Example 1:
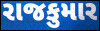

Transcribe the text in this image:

રાજકુમાર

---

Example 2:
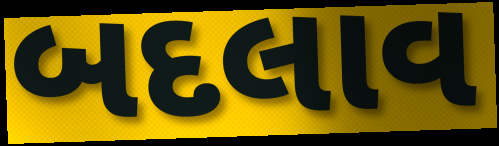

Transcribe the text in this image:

બદલાવ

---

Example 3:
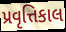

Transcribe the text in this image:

પ્રવૃત્તિકાલ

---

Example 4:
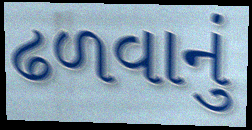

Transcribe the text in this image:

ઢળવાનું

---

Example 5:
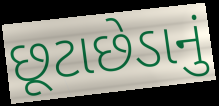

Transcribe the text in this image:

છૂટાછેડાનું